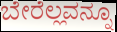
ಬೇರೆಲ್ಲವನ್ನೂ